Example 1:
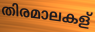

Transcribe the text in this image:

തിരമാലകള്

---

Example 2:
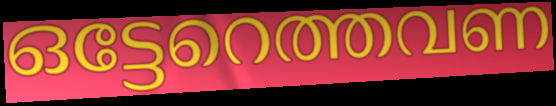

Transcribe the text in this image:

ഒട്ടേറെത്തവണ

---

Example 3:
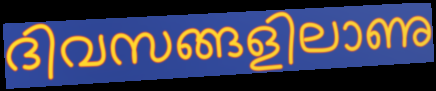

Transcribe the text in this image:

ദിവസങ്ങളിലാണു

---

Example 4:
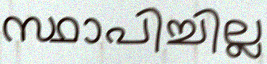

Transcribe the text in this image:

സ്ഥാപിച്ചില്ല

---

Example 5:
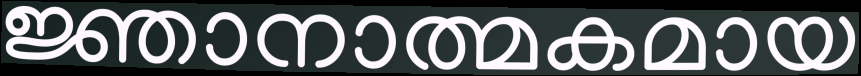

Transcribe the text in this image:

ജ്ഞാനാത്മകമായ